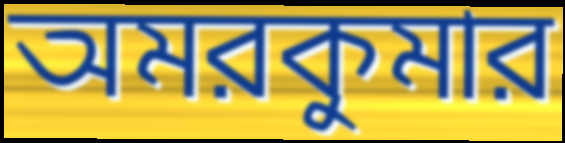
অমরকুমার